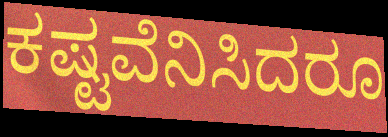
ಕಷ್ಟವೆನಿಸಿದರೂ